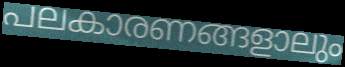
പലകാരണങ്ങളാലും